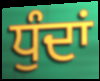
ਧੁੰਦਾਂ